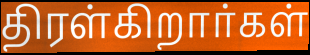
திரள்கிறார்கள்